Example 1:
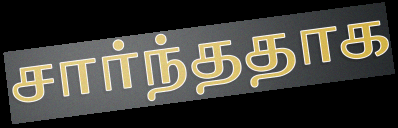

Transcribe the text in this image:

சார்ந்ததாக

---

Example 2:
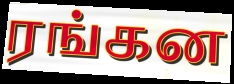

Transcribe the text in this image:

ரங்கன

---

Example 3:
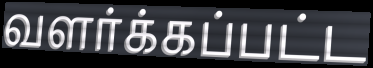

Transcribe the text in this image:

வளர்க்கப்பட்ட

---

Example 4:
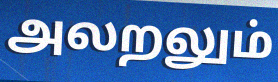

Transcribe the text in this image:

அலறலும்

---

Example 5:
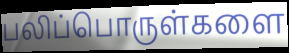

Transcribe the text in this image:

பலிப்பொருள்களை